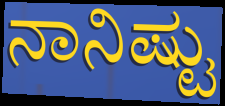
ನಾನಿಷ್ಟು